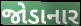
જોડાનાર